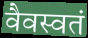
वैवस्वतं